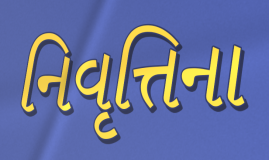
નિવૃત્તિના